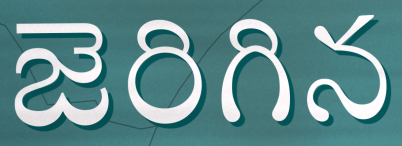
జెరిగిన